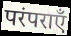
परंपराएँ